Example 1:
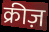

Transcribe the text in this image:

क्रीज़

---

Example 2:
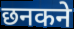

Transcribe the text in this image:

छनकने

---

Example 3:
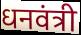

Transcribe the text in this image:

धनवंत्री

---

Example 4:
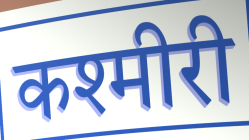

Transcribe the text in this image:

कश्‍मीरी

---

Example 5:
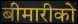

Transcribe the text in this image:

बीमारीको